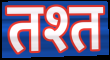
तश्त